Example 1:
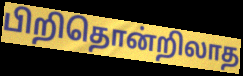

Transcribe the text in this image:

பிறிதொன்றிலாத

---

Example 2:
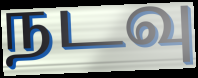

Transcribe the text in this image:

நடவு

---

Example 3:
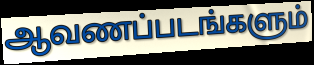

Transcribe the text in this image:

ஆவணப்படங்களும்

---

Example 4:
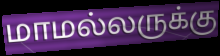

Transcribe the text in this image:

மாமல்லருக்கு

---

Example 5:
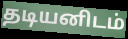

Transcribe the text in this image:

தடியனிடம்